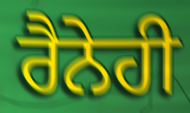
ਰੈਨੇਹੀ